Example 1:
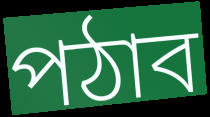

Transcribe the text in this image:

পঠাব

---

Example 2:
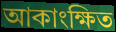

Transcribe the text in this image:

আকাংক্ষিত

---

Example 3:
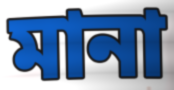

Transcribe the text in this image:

মানা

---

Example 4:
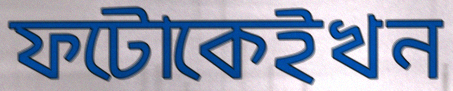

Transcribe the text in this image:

ফটোকেইখন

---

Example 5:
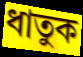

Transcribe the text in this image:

ধাতুক